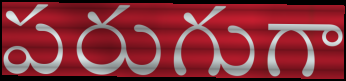
పరుగుగా